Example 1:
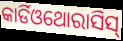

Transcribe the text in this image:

କାର୍ଡିଓଥୋରାସିସ୍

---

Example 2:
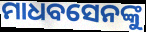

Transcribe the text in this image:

ମାଧବସେନଙ୍କୁ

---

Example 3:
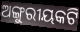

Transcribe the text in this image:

ଅଙ୍ଗୁରୀୟକଟି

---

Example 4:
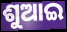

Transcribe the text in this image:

ଶୁଆଇ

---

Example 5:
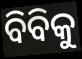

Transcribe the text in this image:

ବିବିକୁ